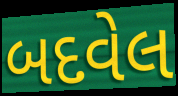
બદવેલ